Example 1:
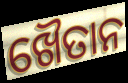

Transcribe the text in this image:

ଖୈତାନ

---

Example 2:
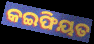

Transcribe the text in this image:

କଇଫିୟତ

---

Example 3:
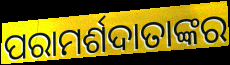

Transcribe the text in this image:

ପରାମର୍ଶଦାତାଙ୍କର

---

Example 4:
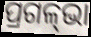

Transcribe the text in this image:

ପ୍ରଗଳ୍‌ଭା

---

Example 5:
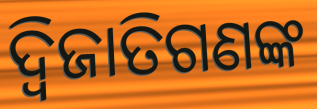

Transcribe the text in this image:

ଦ୍ୱିଜାତିଗଣଙ୍କ